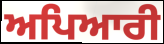
ਅਪਿਆਰੀ